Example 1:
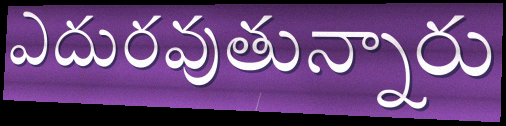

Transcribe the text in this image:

ఎదురవుతున్నారు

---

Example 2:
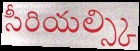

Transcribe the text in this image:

సీరియల్స్కి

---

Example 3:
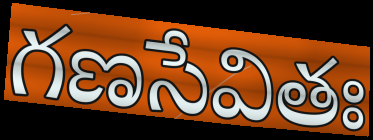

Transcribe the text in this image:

గణసేవితః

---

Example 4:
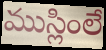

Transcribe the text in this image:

ముస్లింలే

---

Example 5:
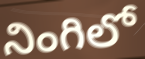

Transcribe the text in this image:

నింగిలో